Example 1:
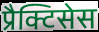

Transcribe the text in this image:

प्रैक्टिसेस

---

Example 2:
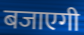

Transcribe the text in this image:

बजाएगी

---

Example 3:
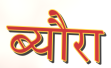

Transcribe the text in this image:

ब्यौरा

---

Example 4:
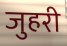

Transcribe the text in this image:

जुहरी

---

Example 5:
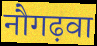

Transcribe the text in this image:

नौगढ़वा